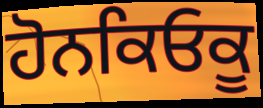
ਹੋਨਕਿਓਕੂ